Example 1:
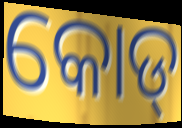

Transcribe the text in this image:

କୋଡ୍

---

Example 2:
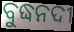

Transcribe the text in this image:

ବୁଦ୍ଧନଦୀ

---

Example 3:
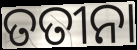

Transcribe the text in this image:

ତତୀନା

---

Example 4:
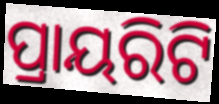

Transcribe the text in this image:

ପ୍ରାୟରିଟି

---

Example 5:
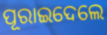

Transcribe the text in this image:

ପୂରାଇଦେଲେ